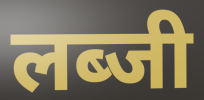
लब्जी